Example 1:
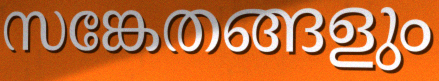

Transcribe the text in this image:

സങ്കേതങ്ങളും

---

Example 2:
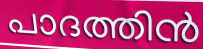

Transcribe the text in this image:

പാദത്തിൻ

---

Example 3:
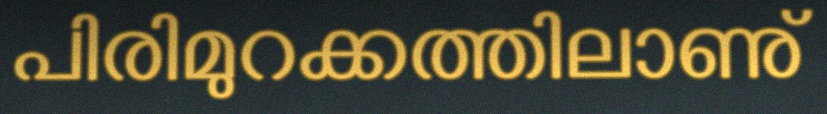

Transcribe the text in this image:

പിരിമുറക്കത്തിലാണു്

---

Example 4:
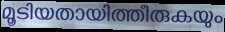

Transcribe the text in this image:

മൂടിയതായിത്തീരുകയും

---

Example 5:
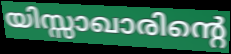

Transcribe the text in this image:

യിസ്സാഖാരിന്റെ